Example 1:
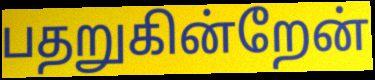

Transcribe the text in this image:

பதறுகின்றேன்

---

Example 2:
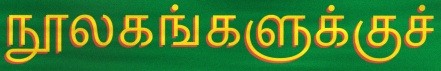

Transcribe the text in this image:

நூலகங்களுக்குச்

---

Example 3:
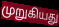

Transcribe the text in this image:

முறுகியது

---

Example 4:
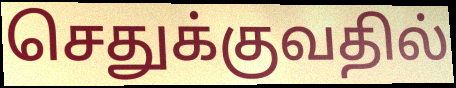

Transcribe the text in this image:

செதுக்குவதில்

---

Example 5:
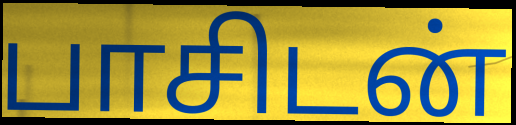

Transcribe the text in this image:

பாசிடன்